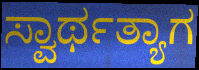
ಸ್ವಾರ್ಥತ್ಯಾಗ